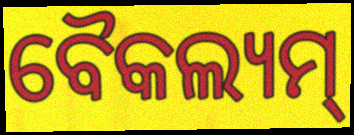
ବୈକଲ୍ୟମ୍